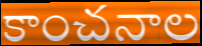
కాంచనాల